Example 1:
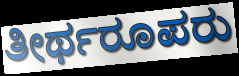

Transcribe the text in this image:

ತೀರ್ಥರೂಪರು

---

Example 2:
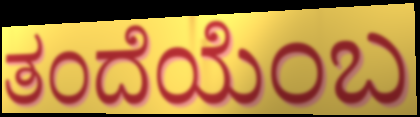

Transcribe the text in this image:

ತಂದೆಯೆಂಬ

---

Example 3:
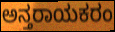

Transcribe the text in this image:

ಅನ್ತರಾಯಕರಂ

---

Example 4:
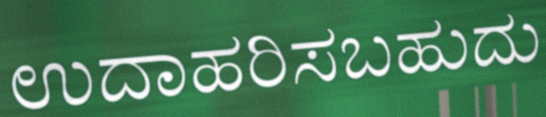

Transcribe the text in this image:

ಉದಾಹರಿಸಬಹುದು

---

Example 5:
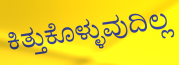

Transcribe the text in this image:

ಕಿತ್ತುಕೊಳ್ಳುವುದಿಲ್ಲ